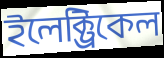
ইলেক্ট্রিকেল